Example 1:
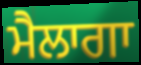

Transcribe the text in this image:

ਮੈਲਾਗਾ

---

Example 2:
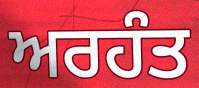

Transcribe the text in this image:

ਅਰਹੰਤ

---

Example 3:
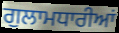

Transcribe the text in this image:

ਗੁਲਾਮਧਾਰੀਆਂ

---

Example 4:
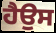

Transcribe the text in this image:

ਹੈਉਸ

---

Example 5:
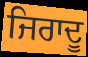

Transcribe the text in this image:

ਜਿਰਾਦੂ